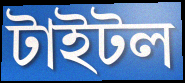
টাইটল